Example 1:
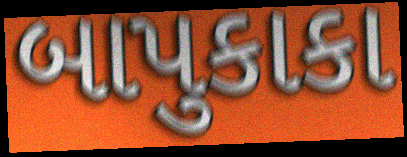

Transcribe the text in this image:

બાપુકાકા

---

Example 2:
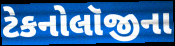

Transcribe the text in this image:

ટેકનોલૉજીના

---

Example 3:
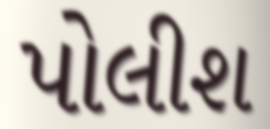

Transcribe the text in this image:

પોલીશ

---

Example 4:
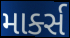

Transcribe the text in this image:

માર્ક્સ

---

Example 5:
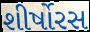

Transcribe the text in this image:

શીર્ષોરસ